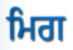
ਮਿਗ